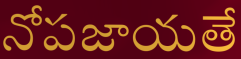
నోపజాయతే